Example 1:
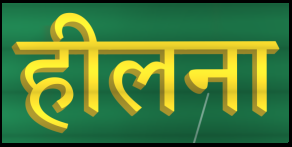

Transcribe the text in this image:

हीलना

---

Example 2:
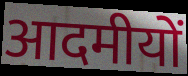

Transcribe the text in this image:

आदमीयों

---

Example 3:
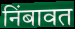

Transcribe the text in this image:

निंबावत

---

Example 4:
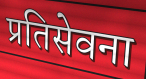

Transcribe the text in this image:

प्रतिसेवना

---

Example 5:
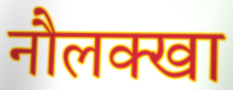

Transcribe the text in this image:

नौलक्खा